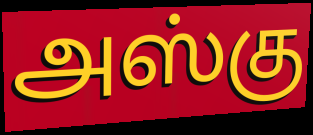
அஸ்கு